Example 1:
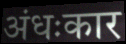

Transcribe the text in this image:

अंधःकार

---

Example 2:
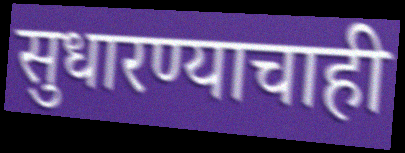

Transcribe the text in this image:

सुधारण्याचाही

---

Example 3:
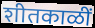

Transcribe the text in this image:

शीतकाळीं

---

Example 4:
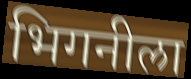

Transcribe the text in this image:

भिगनीला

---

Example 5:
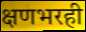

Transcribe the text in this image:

क्षणभरही